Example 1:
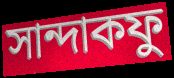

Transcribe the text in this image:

সান্দাকফু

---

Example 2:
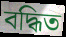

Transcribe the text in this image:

বদ্ধিত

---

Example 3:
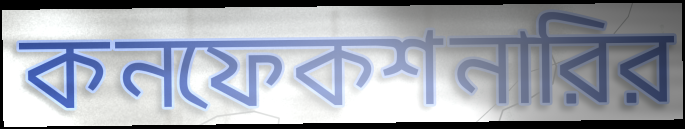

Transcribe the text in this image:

কনফেকশনারির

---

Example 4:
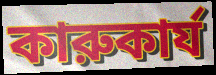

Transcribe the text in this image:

কারুকার্য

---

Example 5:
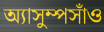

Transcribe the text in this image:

অ্যাসুম্পসাঁও